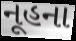
નૂહના